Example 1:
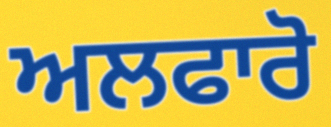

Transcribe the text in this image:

ਅਲਫਾਰੋ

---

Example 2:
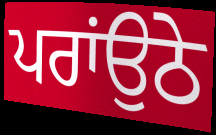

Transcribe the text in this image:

ਪਰਾਂਉਠੇ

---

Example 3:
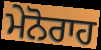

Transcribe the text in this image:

ਮੇਨੋਰਾਹ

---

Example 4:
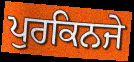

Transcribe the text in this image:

ਪੁਰਕਿਨਜੇ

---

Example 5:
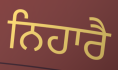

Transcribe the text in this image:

ਨਿਹਾਰੈ